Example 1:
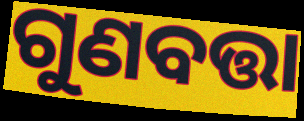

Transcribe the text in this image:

ଗୁଣବତ୍ତା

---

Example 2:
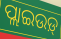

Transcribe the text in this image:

ପ୍ଲାଇଉଡ଼୍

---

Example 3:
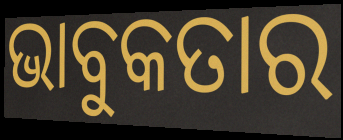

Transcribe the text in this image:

ଭାବୁକତାର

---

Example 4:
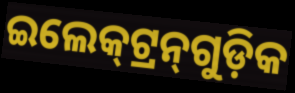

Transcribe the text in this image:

ଇଲେକ୍‍ଟ୍ରନ୍‍ଗୁଡ଼ିକ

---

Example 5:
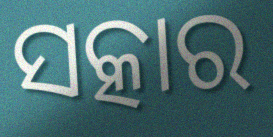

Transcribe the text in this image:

ସତ୍କାର